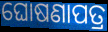
ଘୋଷଣାପତ୍ର